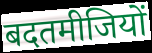
बदतमीजियों